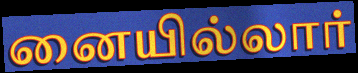
னையில்லார்